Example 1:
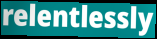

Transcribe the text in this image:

relentlessly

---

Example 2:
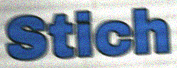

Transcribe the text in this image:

Stich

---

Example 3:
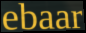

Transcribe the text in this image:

ebaar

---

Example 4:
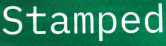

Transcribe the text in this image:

Stamped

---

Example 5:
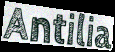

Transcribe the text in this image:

Antilia